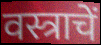
वस्त्राचें